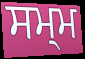
ਸਮ੍ਮ